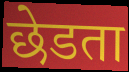
छेडता